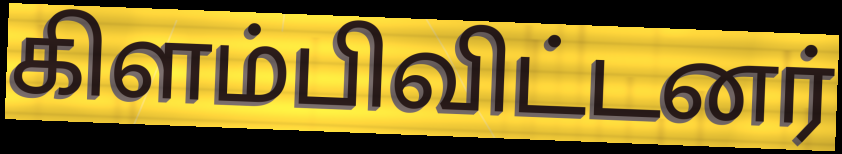
கிளம்பிவிட்டனர்